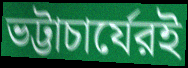
ভট্টাচার্যেরই